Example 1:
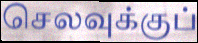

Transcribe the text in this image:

செலவுக்குப்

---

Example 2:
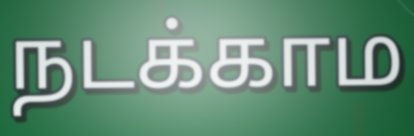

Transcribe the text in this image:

நடக்காம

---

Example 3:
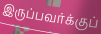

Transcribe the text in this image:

இருப்பவர்க்குப்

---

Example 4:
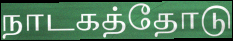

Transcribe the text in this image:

நாடகத்தோடு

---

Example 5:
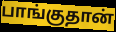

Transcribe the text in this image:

பாங்குதான்